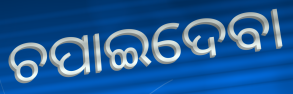
ଚପାଇଦେବା